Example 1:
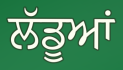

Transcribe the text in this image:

ਲੱਡੂਆਂ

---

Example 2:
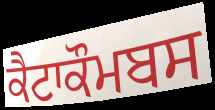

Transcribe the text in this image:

ਕੈਟਾਕੌਮਬਸ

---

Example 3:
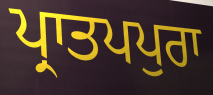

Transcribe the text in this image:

ਪ੍ਰਾਤਪਪੁਰਾ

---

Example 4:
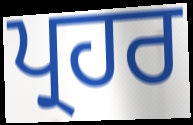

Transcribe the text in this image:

ਪ੍ਰਹਰ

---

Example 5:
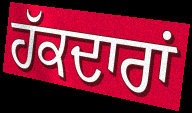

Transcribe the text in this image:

ਹੱਕਦਾਰਾਂ